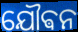
ଯୌଵନ